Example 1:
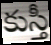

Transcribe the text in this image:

కుస్తీ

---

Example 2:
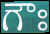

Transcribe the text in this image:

గౌః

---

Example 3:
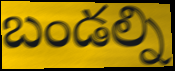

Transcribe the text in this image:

బండల్ని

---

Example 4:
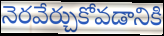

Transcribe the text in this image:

నెరవేర్చుకోవడానికి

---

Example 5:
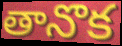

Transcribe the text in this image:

తానొక